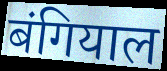
बंगियाल